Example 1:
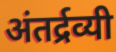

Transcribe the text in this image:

अंतर्द्रव्यी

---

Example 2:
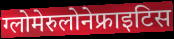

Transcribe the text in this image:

ग्लोमेरुलोनेफ्राइटिस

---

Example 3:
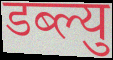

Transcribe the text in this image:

डब्ल्यु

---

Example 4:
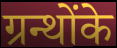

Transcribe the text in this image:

ग्रन्थोंके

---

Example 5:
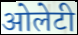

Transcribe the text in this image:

ओलेटी